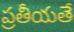
ప్రతీయతే